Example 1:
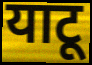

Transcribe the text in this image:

याटू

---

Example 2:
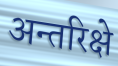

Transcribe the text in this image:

अन्तरिक्षे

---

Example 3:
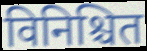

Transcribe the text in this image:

विनिश्चित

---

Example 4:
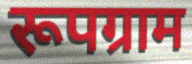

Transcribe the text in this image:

रूपग्राम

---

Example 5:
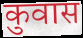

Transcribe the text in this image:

कुवास